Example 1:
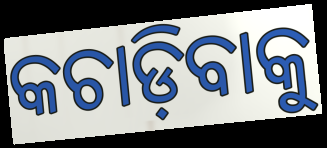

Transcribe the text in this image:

କଚାଡ଼ିବାକୁ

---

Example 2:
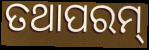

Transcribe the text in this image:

ତଥାପରମ୍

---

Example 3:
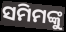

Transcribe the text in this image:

ସମିମଙ୍କୁ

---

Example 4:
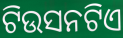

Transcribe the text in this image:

ଟିଉସନଟିଏ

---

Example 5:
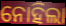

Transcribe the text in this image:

ନୋହିଲା